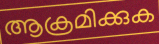
ആക്രമിക്കുക